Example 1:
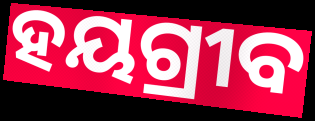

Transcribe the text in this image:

ହୟଗ୍ରୀବ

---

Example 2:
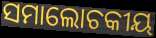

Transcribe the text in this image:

ସମାଲୋଚକୀୟ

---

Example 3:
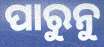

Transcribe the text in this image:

ପାରୁନୁ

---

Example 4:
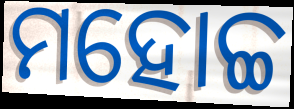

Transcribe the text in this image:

ମହୋଚ୍ଚ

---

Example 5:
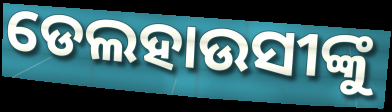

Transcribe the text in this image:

ଡେଲହାଉସୀଙ୍କୁ